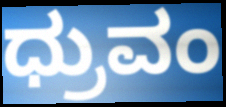
ಧ್ರುವಂ